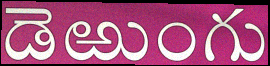
డెఱుంగు